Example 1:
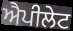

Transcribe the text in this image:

ਐਪੀਲੇਟ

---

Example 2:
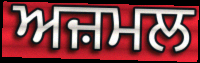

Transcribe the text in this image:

ਅਜ਼ਮਲ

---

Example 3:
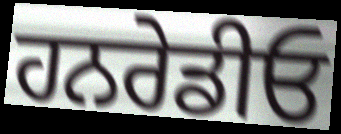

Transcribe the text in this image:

ਹਨਰੇਡੀਓ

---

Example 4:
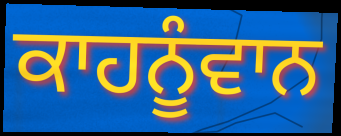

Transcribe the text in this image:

ਕਾਹਨੂੰਵਾਨ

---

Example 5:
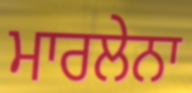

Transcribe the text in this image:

ਮਾਰਲੇਨਾ